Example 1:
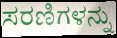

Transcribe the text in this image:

ಸರಣಿಗಳನ್ನು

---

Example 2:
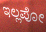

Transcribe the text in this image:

ಇಲ್ಲಪೋ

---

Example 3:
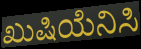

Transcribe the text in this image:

ಖುಷಿಯೆನಿಸಿ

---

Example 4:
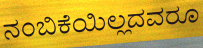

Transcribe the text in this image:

ನಂಬಿಕೆಯಿಲ್ಲದವರೂ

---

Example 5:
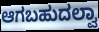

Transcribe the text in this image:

ಆಗಬಹುದಲ್ವಾ